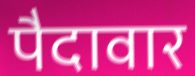
पैदावार